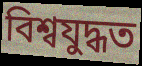
বিশ্বযুদ্ধত